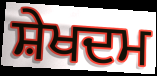
ਸ਼ੇਖਦਮ